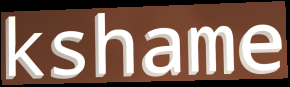
kshame